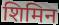
शिमिन